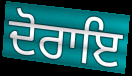
ਦੋਰਾਇ